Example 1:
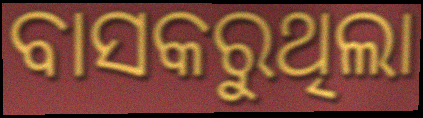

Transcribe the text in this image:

ବାସକରୁଥିଲା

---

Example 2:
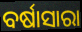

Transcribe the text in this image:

ବର୍ଷାସାରା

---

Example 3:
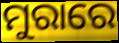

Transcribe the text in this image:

ମୁରାରେ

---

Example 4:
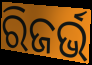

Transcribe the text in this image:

ରିଜର୍ଭ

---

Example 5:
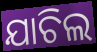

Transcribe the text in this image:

ଯାଚିଲ